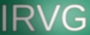
IRVG